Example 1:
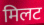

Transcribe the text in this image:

मिलट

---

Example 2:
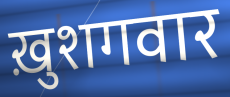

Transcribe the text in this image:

ख़ुशगवार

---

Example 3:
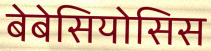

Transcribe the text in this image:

बेबेसियोसिस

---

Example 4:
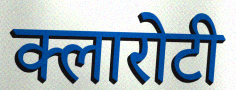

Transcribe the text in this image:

क्लारोटी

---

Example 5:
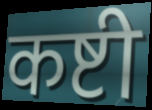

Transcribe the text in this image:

कष्टी